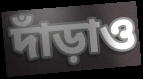
দাঁড়াও